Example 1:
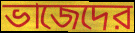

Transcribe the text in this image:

ভাজেদের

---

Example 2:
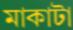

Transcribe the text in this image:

মাকাটা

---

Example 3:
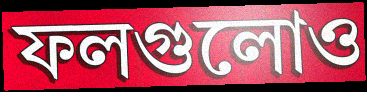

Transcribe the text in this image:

ফলগুলোও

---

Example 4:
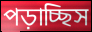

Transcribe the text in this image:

পড়াচ্ছিস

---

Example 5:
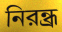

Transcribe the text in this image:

নিরন্ধ্র